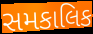
સમકાલિક